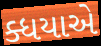
ક્ધયાએ